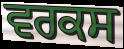
ਵਰਕਸ